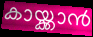
കായ്ക്കാൻ